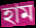
হাম